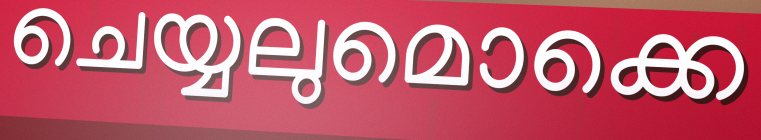
ചെയ്യലുമൊക്കെ